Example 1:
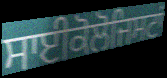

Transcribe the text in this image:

ਸਾਈਕੋਲੋਜਿਸਟਾਂ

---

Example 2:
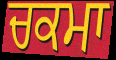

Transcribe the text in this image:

ਚਕਮਾ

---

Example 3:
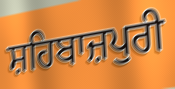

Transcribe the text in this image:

ਸ਼ਹਿਬਾਜ਼ਪੁਰੀ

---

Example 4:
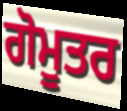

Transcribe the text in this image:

ਗੋਮੂਤਰ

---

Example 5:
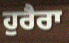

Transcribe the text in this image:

ਹੁਰੈਰਾ